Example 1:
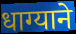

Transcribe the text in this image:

धाग्याने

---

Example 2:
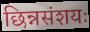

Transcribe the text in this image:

छिन्नसंशयः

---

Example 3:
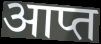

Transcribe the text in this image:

आप्त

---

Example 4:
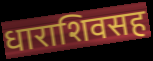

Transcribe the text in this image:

धाराशिवसह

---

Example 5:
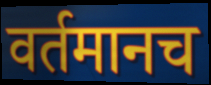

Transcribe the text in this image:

वर्तमानच